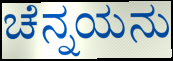
ಚೆನ್ನಯನು